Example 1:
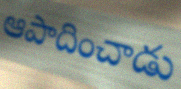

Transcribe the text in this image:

ఆపాదించాడు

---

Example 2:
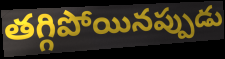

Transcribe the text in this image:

తగ్గిపోయినప్పుడు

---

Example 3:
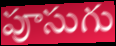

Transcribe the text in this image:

పూసుగు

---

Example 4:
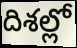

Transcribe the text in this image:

దిశల్లో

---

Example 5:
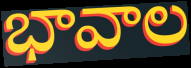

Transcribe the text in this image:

భావాల